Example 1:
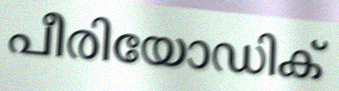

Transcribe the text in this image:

പീരിയോഡിക്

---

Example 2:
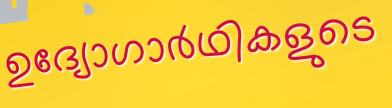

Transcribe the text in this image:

ഉദ്യോഗാർഥികളുടെ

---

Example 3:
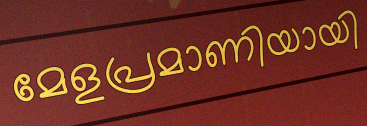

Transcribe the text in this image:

മേളപ്രമാണിയായി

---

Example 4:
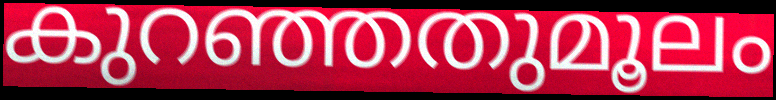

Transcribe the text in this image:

കുറഞ്ഞതുമൂലം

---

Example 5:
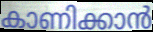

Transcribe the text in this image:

കാണിക്കാൻ